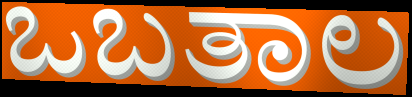
ಒಬತಾಲ